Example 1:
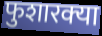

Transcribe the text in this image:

फुशारक्‍या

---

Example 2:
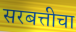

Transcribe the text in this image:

सरबत्तीचा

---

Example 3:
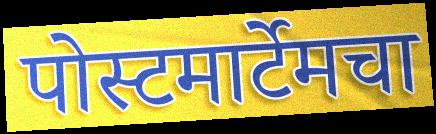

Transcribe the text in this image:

पोस्टमार्टेमचा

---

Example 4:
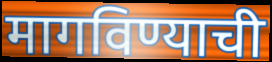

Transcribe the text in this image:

मागविण्याची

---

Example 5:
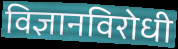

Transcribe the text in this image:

विज्ञानविरोधी